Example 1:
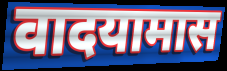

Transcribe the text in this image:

वादयामास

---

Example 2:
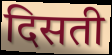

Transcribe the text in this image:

दिसती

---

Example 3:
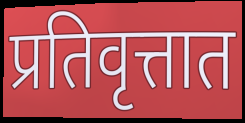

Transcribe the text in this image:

प्रतिवृत्तात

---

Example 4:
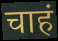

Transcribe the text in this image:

चाहं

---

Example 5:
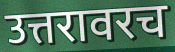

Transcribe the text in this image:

उत्तरावरच